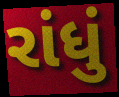
રાંધું